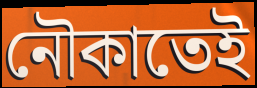
নৌকাতেই